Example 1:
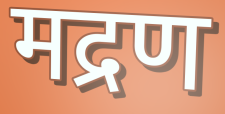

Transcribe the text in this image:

मद्रण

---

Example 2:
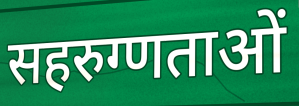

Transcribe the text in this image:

सहरुग्णताओं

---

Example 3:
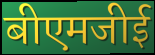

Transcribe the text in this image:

बीएमजीई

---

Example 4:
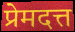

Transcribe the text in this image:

प्रेमदत्त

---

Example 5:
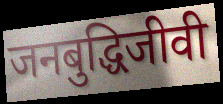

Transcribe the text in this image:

जनबुद्धिजीवी